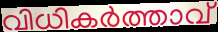
വിധികർത്താവ്